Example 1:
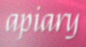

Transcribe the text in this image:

apiary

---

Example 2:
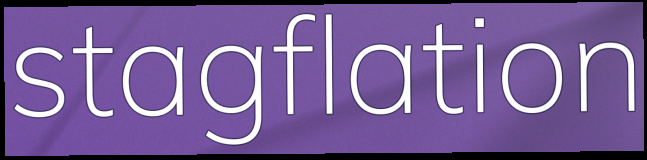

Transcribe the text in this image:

stagflation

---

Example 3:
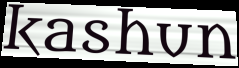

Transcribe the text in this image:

kashun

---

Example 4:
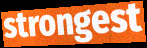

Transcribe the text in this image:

strongest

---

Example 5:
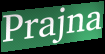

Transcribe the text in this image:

Prajna